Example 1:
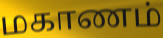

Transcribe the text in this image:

மகாணம்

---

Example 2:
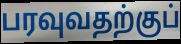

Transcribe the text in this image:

பரவுவதற்குப்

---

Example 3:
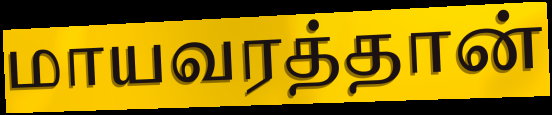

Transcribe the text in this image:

மாயவரத்தான்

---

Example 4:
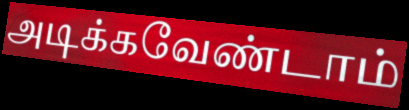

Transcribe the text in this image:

அடிக்கவேண்டாம்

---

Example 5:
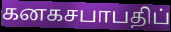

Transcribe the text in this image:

கனகசபாபதிப்